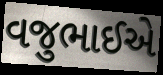
વજુભાઈએ